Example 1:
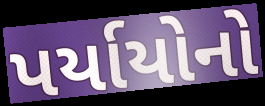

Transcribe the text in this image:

પર્યાયોનો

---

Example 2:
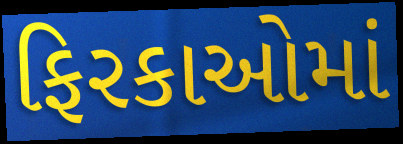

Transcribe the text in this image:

ફિરકાઓમાં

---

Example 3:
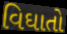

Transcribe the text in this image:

વિઘાતો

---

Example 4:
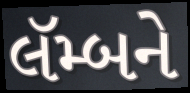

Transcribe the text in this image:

લૅમ્બને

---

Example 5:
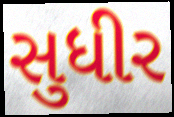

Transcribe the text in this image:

સુધીર